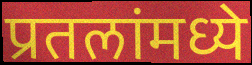
प्रतलांमध्ये